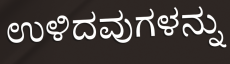
ಉಳಿದವುಗಳನ್ನು